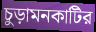
চুড়ামনকাটির